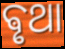
ଵୃଥା